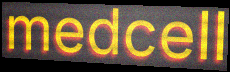
medcell